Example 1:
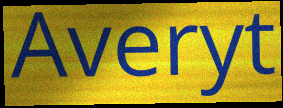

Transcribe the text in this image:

Averyt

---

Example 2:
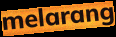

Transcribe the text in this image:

melarang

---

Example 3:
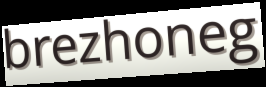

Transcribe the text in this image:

brezhoneg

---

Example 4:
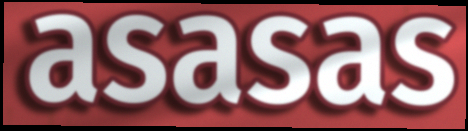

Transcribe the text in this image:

asasas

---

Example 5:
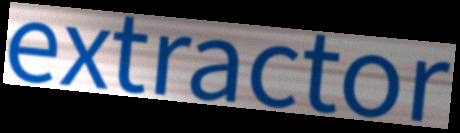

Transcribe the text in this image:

extractor